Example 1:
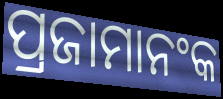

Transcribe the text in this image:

ପ୍ରଜାମାନଂକ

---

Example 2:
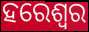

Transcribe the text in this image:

ହରେଶ୍ୱର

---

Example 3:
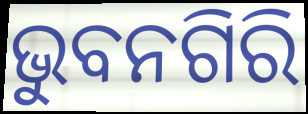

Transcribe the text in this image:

ଭୁବନଗିରି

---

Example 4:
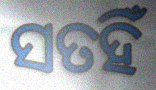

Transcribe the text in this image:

ସତହିଁ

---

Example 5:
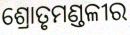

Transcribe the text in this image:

ଶ୍ରୋତୃମଣ୍ଡଳୀର